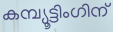
കമ്പ്യൂട്ടിംഗിന്